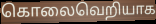
கொலைவெறியாக